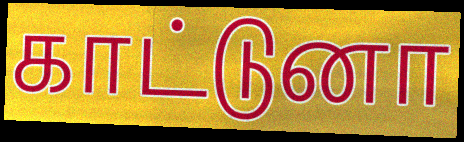
காட்டுனா